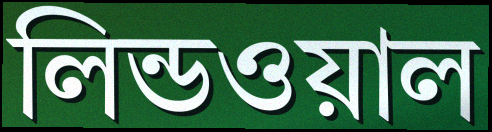
লিন্ডওয়াল